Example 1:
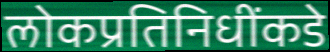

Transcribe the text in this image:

लोकप्रतिनिधींकडे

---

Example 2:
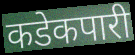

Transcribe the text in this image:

कडेकपारी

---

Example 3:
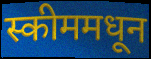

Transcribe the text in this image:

स्कीममधून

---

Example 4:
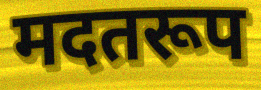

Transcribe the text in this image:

मदतरूप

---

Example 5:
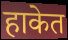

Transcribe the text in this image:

हाकेत